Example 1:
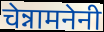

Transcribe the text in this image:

चेन्नामनेनी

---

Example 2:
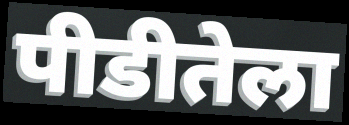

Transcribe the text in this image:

पीडीतेला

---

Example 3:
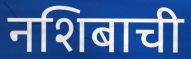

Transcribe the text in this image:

नशिबाची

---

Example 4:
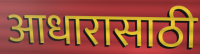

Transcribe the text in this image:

आधारासाठी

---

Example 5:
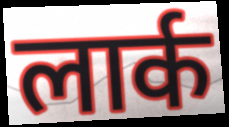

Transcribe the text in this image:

लार्क